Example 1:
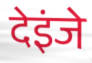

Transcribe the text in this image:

देइंजे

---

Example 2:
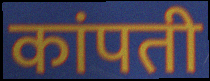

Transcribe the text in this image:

कांपती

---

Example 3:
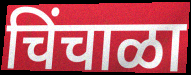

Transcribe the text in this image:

चिंचाळा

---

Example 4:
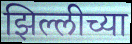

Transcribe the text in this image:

झिल्लीच्या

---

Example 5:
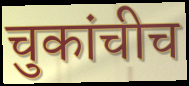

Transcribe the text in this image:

चुकांचीच